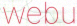
webu